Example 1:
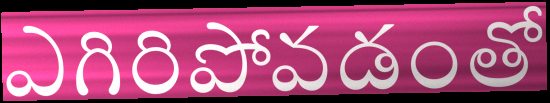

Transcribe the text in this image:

ఎగిరిపోవడంతో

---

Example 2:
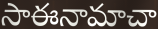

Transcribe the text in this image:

సాఈనామాచా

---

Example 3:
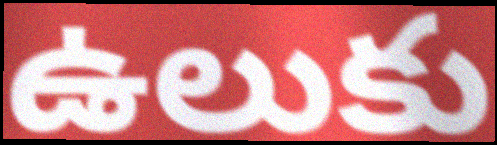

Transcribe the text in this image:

ఉలుకు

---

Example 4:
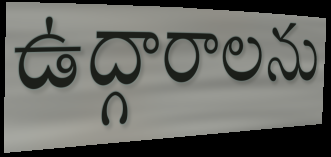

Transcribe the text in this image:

ఉద్గారాలను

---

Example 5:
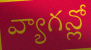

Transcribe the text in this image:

వ్యాగన్లో